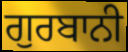
ਗੁਰਬਾਨੀ